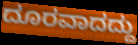
ದೂರವಾದದ್ದು